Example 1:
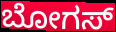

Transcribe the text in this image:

ಬೋಗಸ್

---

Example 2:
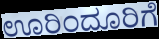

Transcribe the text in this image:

ಊರಿಂದೂರಿಗೆ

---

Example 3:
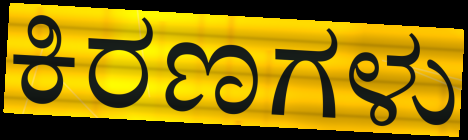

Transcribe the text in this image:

ಕಿರಣಗಳು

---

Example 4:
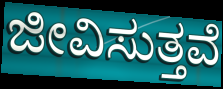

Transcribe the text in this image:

ಜೀವಿಸುತ್ತವೆ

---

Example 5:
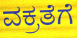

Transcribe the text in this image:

ವಕ್ರತೆಗೆ